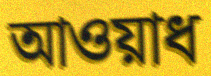
আওয়াধ